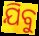
ଯିବୁ